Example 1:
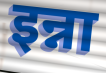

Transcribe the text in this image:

इन्ना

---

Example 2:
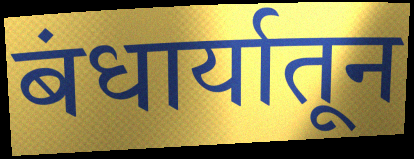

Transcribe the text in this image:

बंधार्यातून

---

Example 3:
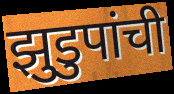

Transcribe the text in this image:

झुडुपांची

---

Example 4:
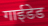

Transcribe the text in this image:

गाईडेड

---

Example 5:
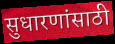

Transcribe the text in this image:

सुधारणांसाठी